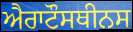
ਐਰਾਟੌਸਥੀਨਸ